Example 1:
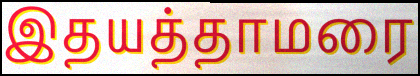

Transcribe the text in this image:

இதயத்தாமரை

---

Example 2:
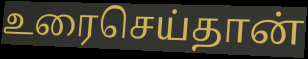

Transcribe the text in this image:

உரைசெய்தான்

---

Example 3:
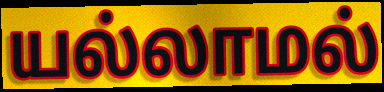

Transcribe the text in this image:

யல்லாமல்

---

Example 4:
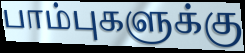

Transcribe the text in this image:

பாம்புகளுக்கு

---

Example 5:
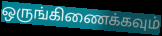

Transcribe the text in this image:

ஒருங்கிணைக்கவும்